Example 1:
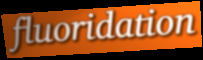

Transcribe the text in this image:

fluoridation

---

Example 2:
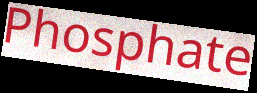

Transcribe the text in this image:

Phosphate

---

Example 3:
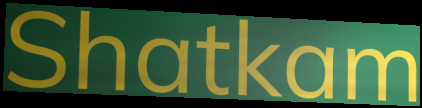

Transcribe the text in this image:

Shatkam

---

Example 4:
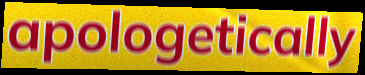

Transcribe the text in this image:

apologetically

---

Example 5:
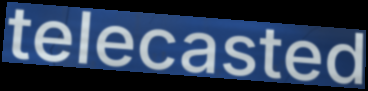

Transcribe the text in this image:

telecasted